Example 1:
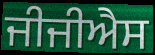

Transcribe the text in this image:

ਜੀਜੀਐਸ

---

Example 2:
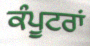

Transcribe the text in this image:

ਕੰਪੂਟਰਾਂ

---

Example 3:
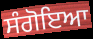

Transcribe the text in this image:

ਸੰਗੋਇਆ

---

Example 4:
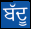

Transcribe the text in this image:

ਬੱਦੂ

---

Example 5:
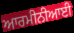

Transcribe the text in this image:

ਆਰਮੀਨੀਆਈ